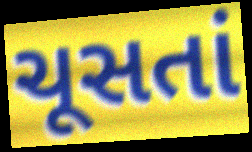
ચૂસતાં